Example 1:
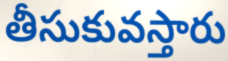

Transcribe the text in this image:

తీసుకువస్తారు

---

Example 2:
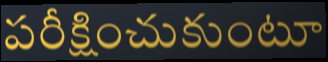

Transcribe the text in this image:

పరీక్షించుకుంటూ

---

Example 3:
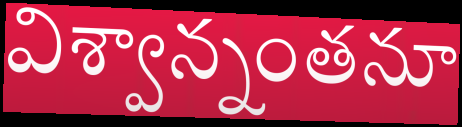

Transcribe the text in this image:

విశ్వాన్నంతనూ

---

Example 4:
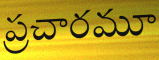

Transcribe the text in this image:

ప్రచారమూ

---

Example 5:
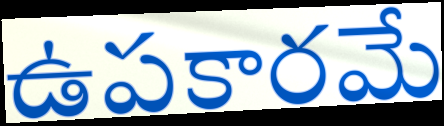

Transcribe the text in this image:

ఉపకారమే